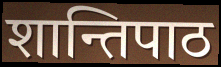
शान्तिपाठ